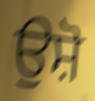
ਉਸ਼ੋ